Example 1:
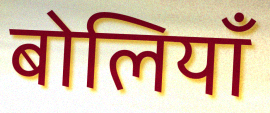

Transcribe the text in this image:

बोलियाँ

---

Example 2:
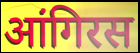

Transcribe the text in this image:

आंगिरस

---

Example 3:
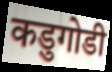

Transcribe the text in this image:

कडुगोडी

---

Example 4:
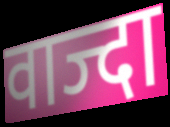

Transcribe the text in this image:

वाज्दा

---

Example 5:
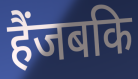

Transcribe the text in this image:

हैंजबकि